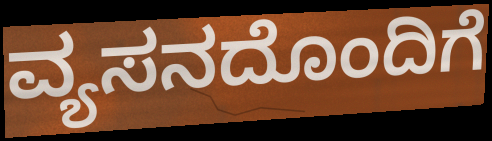
ವ್ಯಸನದೊಂದಿಗೆ